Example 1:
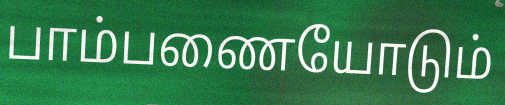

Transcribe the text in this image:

பாம்பணையோடும்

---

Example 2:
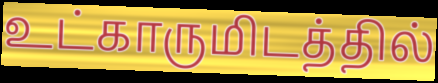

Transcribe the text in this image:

உட்காருமிடத்தில்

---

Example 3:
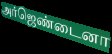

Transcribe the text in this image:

அர்ஜெண்டைனா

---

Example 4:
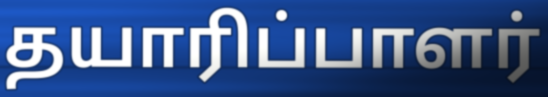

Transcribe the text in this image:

தயாரிப்பாளர்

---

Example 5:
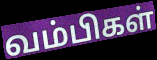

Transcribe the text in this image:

வம்பிகள்